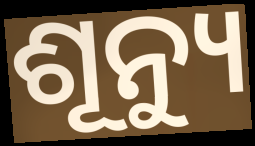
ଶୂନ୍ୟୁ